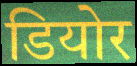
डियोर